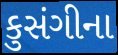
કુસંગીના